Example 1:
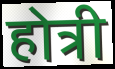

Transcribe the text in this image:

होत्री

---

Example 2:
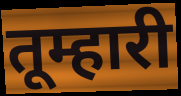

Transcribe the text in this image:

तूम्हारी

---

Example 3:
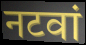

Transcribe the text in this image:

नटवां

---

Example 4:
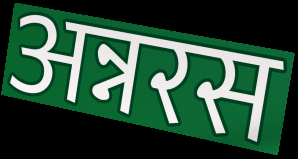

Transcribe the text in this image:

अन्नरस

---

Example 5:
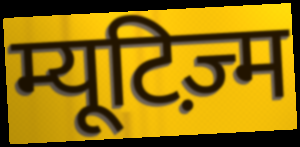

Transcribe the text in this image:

म्यूटिज़्म